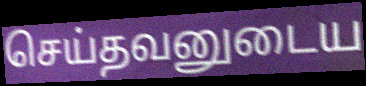
செய்தவனுடைய